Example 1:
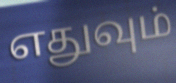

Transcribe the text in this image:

எதுவும்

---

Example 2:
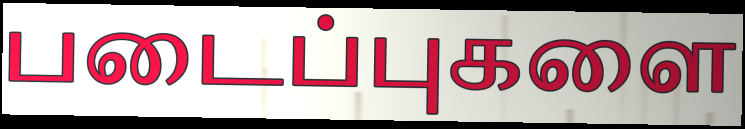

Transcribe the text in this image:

படைப்புகளை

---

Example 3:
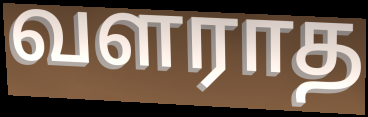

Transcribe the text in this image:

வளராத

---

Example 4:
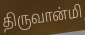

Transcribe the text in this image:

திருவான்மி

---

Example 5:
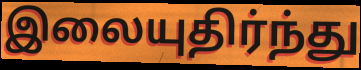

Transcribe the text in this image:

இலையுதிர்ந்து